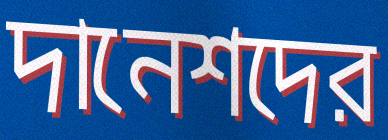
দানেশদের